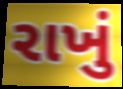
રાખું